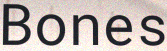
Bones